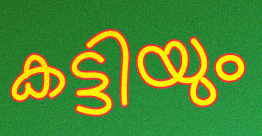
കട്ടിയും